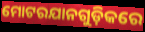
ମୋଟରଯାନଗୁଡ଼ିକରେ